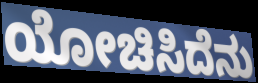
ಯೋಚಿಸಿದೆನು